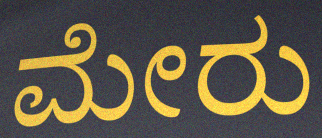
ಮೇರು